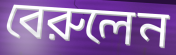
বেরুলেন